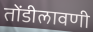
तोंडीलावणी